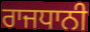
ਰਾਜਧਾਨੀ